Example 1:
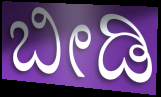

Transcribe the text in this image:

ಬೀಡಿ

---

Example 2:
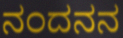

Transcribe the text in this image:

ನಂದನನ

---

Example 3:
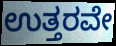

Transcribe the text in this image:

ಉತ್ತರವೇ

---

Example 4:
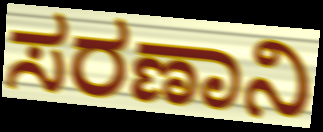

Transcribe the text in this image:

ಸರಣಾನಿ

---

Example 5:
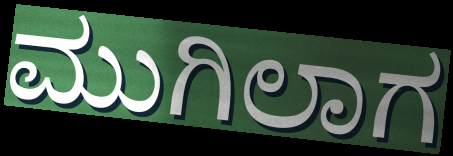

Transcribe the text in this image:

ಮುಗಿಲಾಗ